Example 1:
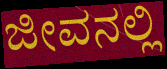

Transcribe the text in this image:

ಜೀವನಲ್ಲಿ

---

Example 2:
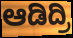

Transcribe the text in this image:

ಆಡಿದ್ರಿ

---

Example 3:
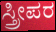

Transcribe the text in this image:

ಸ್ತ್ರೀಪರ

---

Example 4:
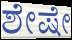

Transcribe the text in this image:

ಶೇಷೇ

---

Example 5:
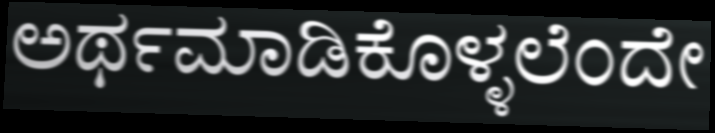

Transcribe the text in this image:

ಅರ್ಥಮಾಡಿಕೊಳ್ಳಲೆಂದೇ